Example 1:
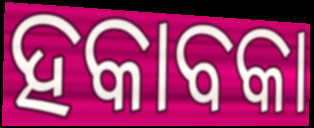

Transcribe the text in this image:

ହକାବକା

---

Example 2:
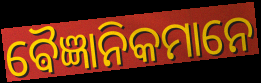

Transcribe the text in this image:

ଵୈଜ୍ଞାନିକମାନେ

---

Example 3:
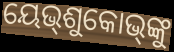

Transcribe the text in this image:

ୟେଭ୍‌ଶୁକୋଭ୍‌ଙ୍କୁ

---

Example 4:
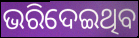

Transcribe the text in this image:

ଭରିଦେଇଥିବ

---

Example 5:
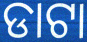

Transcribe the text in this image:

ଡାଟା